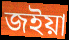
জইয়া